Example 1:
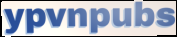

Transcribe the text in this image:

ypvnpubs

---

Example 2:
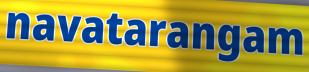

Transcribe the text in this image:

navatarangam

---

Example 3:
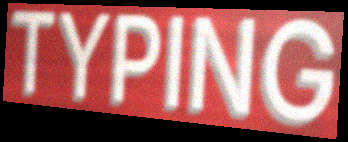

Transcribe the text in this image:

TYPING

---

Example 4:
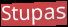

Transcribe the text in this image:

Stupas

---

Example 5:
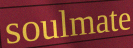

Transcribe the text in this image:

soulmate